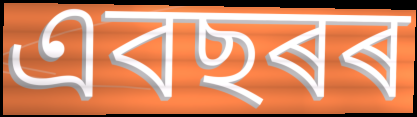
এবছৰৰ